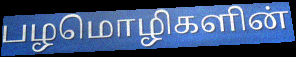
பழமொழிகளின்